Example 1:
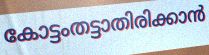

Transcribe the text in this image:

കോട്ടംതട്ടാതിരിക്കാൻ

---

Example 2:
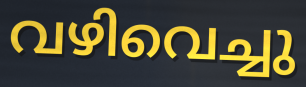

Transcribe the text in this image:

വഴിവെച്ചു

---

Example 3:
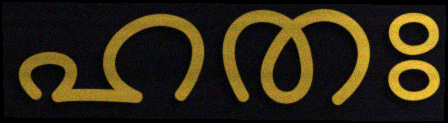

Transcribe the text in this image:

ഹതഃ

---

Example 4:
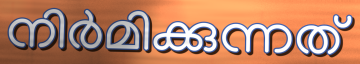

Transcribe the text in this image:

നിർമിക്കുന്നത്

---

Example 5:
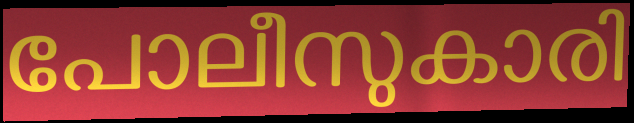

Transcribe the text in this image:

പോലീസുകാരി